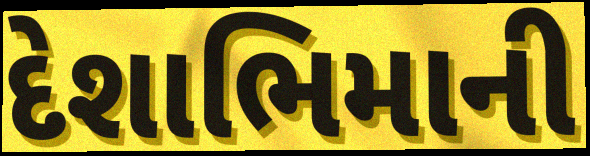
દેશાભિમાની